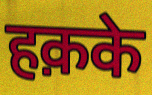
हक़के